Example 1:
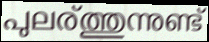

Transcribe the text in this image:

പുലര്ത്തുന്നുണ്ട്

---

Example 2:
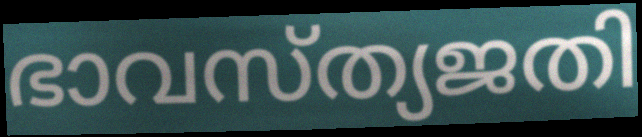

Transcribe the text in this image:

ഭാവസ്ത്യജതി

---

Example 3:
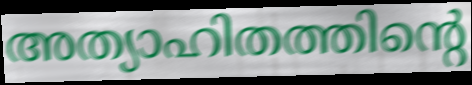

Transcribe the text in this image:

അത്യാഹിതത്തിന്റെ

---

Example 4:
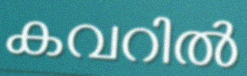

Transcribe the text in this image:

കവറിൽ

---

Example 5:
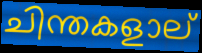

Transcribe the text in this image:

ചിന്തകളാല്